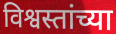
विश्वस्तांच्या